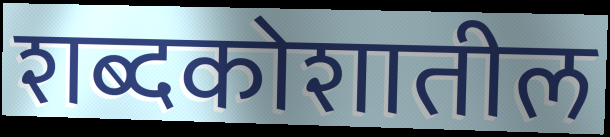
शब्दकोशातील